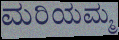
ಮರಿಯಮ್ಮ